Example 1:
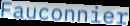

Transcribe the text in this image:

Fauconnier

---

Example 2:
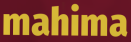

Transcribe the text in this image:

mahima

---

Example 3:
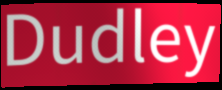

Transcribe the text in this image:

Dudley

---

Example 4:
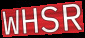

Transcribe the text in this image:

WHSR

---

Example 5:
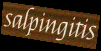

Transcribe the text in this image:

salpingitis